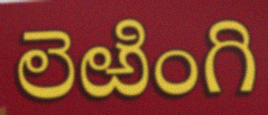
లెఱింగి